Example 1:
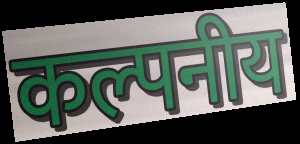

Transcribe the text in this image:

कल्पनीय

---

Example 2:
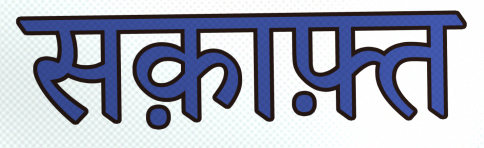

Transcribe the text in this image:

सक़ाफ़्त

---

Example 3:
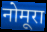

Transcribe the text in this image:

नोमूरा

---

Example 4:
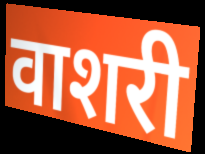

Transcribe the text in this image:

वाशरी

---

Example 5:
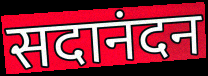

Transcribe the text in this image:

सदानंदन